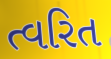
ત્વરિત